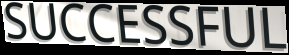
SUCCESSFUL